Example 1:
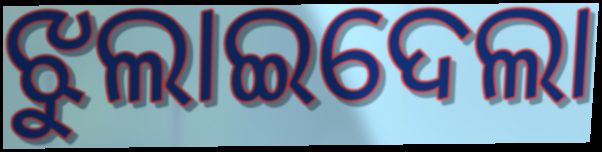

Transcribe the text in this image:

ଝୁଲାଇଦେଲା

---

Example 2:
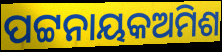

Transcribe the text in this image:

ପଟ୍ଟନାୟକଅମିଶ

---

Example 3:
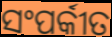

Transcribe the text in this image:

ସଂପର୍କୀତ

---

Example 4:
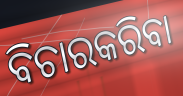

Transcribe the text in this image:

ବିଚାରକରିବା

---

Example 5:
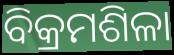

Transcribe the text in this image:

ବିକ୍ରମଶିଳା